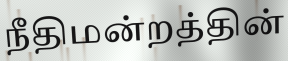
நீதிமன்றத்தின்